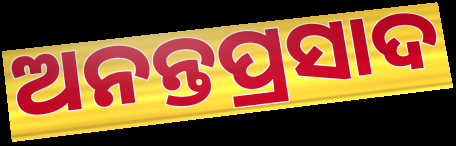
ଅନନ୍ତପ୍ରସାଦ